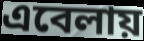
এবেলায়